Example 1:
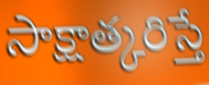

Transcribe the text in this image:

సాక్షాత్కరిస్తే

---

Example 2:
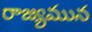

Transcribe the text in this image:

రాజ్యమున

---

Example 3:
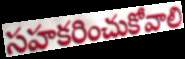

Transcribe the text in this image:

సహకరించుకోవాలి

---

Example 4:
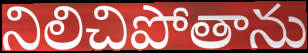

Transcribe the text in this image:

నిలిచిపోతాను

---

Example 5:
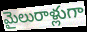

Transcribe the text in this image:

మైలురాళ్లుగా